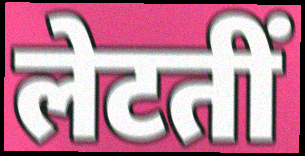
लेटतीं